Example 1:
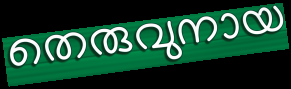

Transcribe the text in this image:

തെരുവുനായ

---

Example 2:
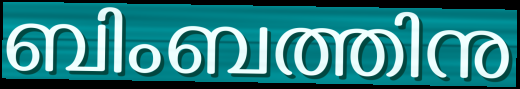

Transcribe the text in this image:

ബിംബത്തിനു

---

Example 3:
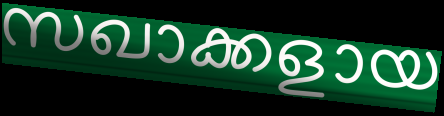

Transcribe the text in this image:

സഖാക്കളായ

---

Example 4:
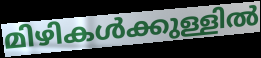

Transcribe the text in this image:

മിഴികൾക്കുള്ളിൽ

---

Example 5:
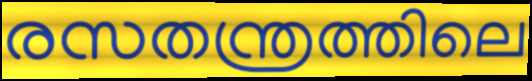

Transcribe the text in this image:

രസതന്ത്രത്തിലെ